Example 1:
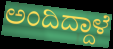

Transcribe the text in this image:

ಅಂದಿದ್ದಾಳೆ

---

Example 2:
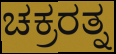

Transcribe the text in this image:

ಚಕ್ರರತ್ನ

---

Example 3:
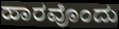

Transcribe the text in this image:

ಹಾರವೊಂದು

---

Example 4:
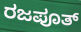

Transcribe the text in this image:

ರಜಪೂತ್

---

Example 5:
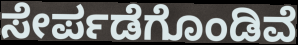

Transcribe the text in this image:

ಸೇರ್ಪಡೆಗೊಂಡಿವೆ